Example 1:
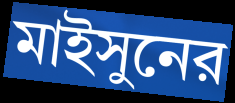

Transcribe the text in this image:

মাইসুনের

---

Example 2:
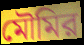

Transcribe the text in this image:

মৌমির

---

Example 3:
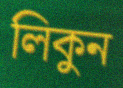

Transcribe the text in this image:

লিকুন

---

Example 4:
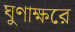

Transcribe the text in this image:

ঘুণাক্ষরে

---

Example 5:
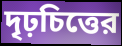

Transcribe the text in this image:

দৃঢ়চিত্তের